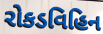
રોકડવિહિન